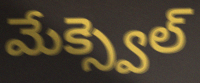
మేక్స్వెల్